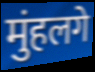
मुंहलगे